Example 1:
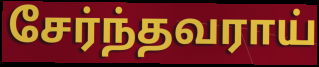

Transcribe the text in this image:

சேர்ந்தவராய்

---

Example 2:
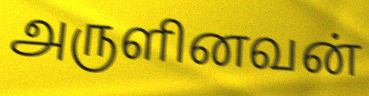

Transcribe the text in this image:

அருளினவன்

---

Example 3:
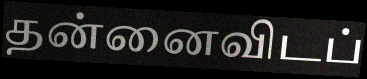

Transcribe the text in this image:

தன்னைவிடப்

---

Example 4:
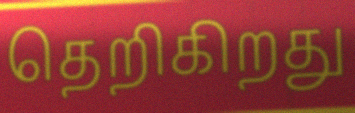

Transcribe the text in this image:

தெறிகிறது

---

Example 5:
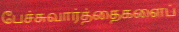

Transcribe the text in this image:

பேச்சுவார்த்தைகளைப்